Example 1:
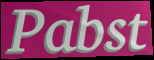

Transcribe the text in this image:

Pabst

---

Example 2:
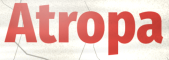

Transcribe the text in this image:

Atropa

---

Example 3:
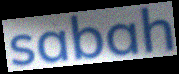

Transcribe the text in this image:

sabah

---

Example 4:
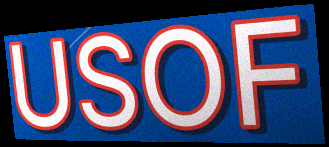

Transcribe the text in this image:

USOF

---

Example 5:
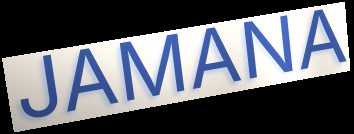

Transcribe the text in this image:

JAMANA